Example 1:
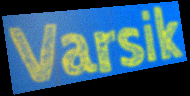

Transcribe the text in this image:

Varsik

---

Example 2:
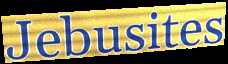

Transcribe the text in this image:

Jebusites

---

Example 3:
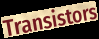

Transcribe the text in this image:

Transistors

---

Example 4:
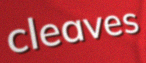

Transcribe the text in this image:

cleaves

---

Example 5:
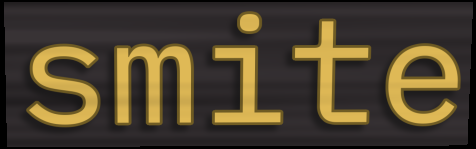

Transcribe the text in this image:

smite